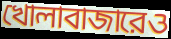
খোলাবাজারেও